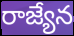
రాజ్యేన